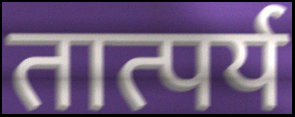
तात्पर्य